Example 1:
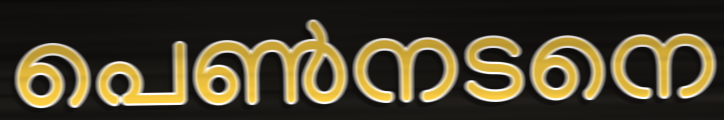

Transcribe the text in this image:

പെൺനടനെ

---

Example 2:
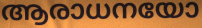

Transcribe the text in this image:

ആരാധനയോ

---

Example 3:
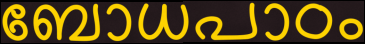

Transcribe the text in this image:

ബോധപാഠം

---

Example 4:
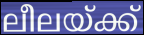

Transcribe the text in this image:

ലീലയ്ക്ക്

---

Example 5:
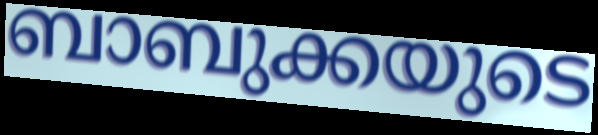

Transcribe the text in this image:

ബാബുക്കയുടെ